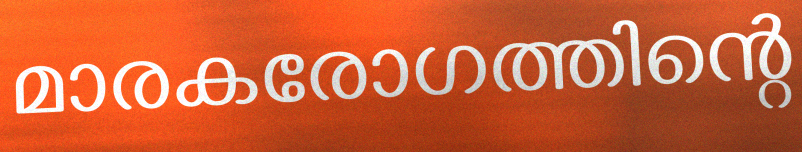
മാരകരോഗത്തിന്റെ